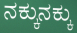
ನಕ್ಕುನಕ್ಕು